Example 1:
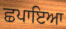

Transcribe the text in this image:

ਛਪਾਇਆ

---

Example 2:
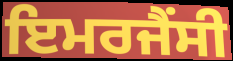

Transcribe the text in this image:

ਇਮਰਜੈਂਸੀ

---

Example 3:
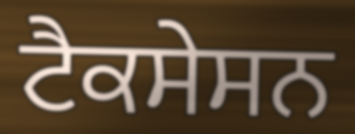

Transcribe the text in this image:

ਟੈਕਸੇਸਨ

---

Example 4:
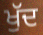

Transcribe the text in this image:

ਖੁੱਦ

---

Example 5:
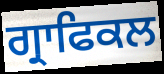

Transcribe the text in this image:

ਗ੍ਰਾਫਿਕਲ